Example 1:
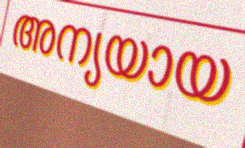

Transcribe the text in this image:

അന്യയായ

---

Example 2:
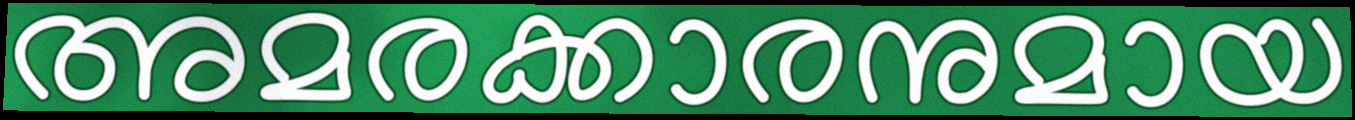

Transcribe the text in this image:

അമരക്കാരനുമായ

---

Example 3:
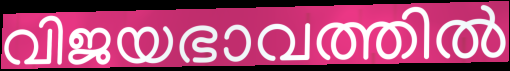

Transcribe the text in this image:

വിജയഭാവത്തിൽ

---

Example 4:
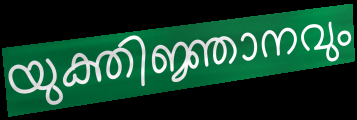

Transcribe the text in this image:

യുക്തിജ്ഞാനവും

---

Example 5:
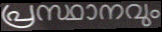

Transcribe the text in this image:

പ്രസ്ഥാനവും